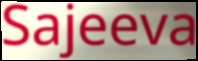
Sajeeva